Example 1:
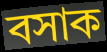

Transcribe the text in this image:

বসাক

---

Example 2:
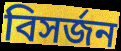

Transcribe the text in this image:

বিসৰ্জন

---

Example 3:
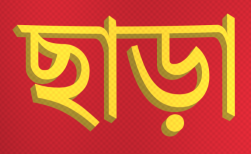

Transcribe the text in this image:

ছাড়া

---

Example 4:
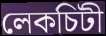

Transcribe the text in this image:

লেকচিটী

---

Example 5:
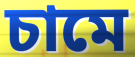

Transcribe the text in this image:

চামে